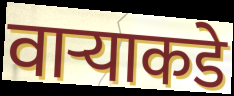
वाऱ्याकडे